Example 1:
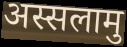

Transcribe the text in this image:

अस्सलामु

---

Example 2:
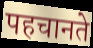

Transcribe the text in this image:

पहचानते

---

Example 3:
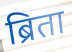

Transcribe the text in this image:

ब्रिता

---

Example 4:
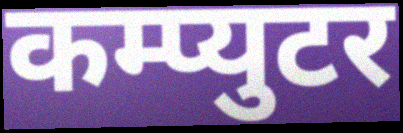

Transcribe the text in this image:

कम्प्युटर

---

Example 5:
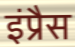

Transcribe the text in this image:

इंप्रैस